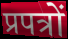
प्रपत्रों